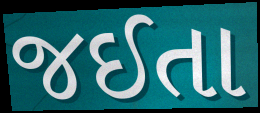
જઈતા